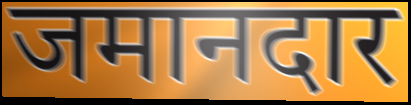
जमानदार